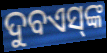
ଦୁବଏସ୍‌ଙ୍କ